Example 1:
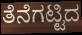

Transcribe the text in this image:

ತೆನೆಗಟ್ಟಿದ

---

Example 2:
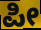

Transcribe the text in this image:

ಪೀ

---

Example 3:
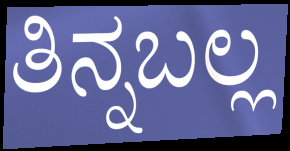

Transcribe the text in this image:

ತಿನ್ನಬಲ್ಲ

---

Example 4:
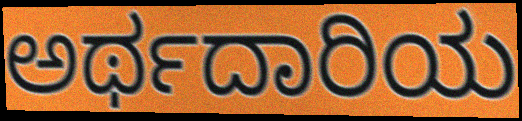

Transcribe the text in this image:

ಅರ್ಥದಾರಿಯ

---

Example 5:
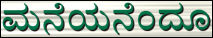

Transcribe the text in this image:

ಮನೆಯನೆಂದೂ